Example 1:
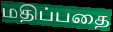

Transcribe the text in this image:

மதிப்பதை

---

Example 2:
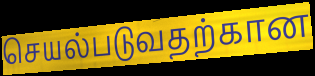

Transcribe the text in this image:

செயல்படுவதற்கான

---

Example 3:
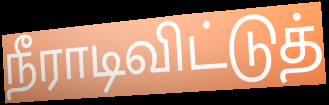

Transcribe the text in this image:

நீராடிவிட்டுத்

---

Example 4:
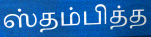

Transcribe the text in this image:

ஸ்தம்பித்த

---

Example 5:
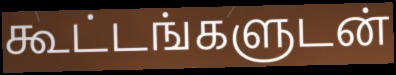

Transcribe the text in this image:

கூட்டங்களுடன்